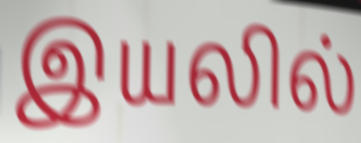
இயலில்